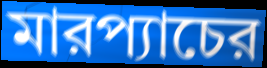
মারপ্যাচের